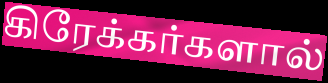
கிரேக்கர்களால்